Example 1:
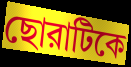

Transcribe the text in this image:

ছোরাটিকে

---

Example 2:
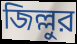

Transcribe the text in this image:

জিল্লুর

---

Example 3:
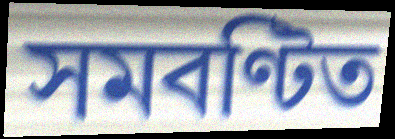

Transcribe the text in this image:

সমবণ্টিত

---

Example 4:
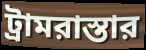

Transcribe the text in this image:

ট্রামরাস্তার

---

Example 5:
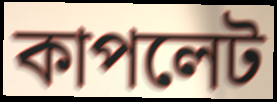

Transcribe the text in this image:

কাপলেট